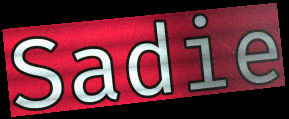
Sadie